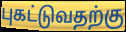
புகட்டுவதற்கு